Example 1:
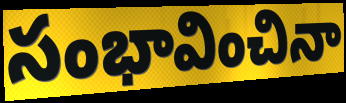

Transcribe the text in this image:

సంభావించినా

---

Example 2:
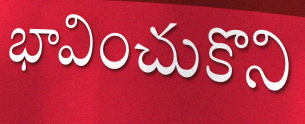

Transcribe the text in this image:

భావించుకొని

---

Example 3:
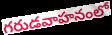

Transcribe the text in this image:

గరుడవాహనంలో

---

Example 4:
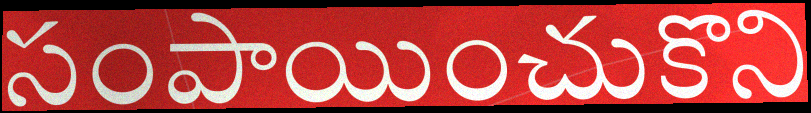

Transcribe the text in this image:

సంపాయించుకొని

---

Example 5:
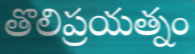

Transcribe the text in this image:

తొలిప్రయత్నం